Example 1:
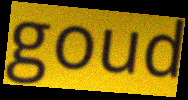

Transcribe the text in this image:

goud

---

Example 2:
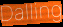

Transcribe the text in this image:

Dalling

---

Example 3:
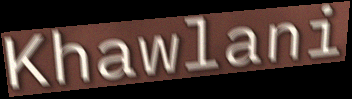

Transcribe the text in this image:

Khawlani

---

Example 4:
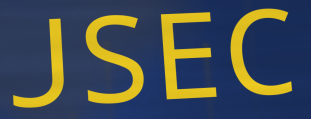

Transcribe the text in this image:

JSEC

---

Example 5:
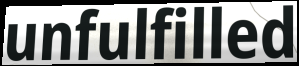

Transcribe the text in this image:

unfulfilled